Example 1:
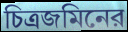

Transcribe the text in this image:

চিত্রজমিনের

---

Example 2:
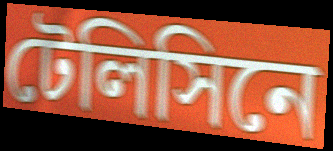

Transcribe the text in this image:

টেলিসিনে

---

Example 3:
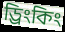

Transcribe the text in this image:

ড্রিংকিং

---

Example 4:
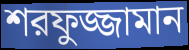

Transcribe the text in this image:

শরফুজ্জামান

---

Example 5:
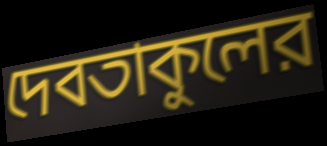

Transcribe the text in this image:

দেবতাকুলের